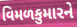
વિમળકુમારને